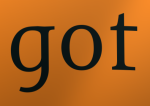
got